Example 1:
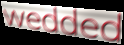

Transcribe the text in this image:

wedded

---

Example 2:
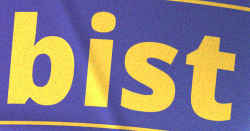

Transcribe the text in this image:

bist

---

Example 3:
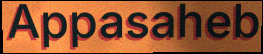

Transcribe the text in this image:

Appasaheb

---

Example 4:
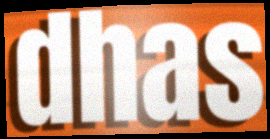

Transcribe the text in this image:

dhas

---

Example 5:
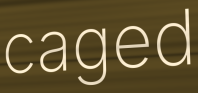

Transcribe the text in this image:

caged